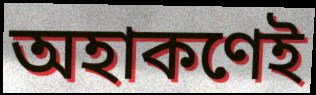
অহাকণেই